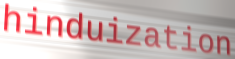
hinduization